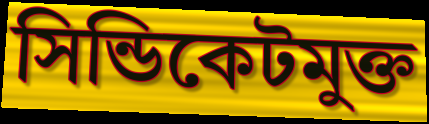
সিন্ডিকেটমুক্ত